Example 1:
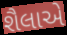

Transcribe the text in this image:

શૈલાએ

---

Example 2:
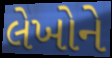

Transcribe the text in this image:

લેખોને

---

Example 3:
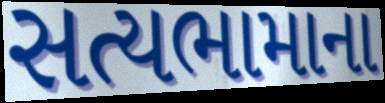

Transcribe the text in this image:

સત્યભામાના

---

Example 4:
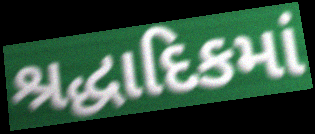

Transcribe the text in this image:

શ્રદ્ધાદિકમાં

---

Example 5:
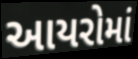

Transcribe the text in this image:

આયરોમાં